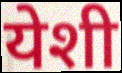
येशी